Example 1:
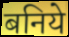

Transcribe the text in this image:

बनिये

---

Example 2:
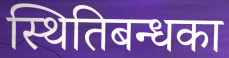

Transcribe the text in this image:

स्थितिबन्धका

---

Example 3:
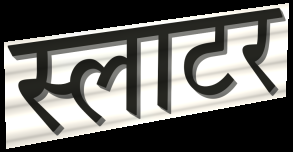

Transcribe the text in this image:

स्लाटर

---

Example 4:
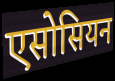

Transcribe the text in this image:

एसोसियन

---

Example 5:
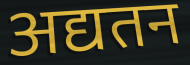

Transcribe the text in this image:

अद्यतन